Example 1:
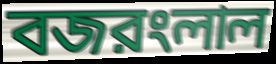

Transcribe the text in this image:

বজরংলাল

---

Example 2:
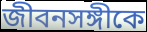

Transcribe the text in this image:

জীবনসঙ্গীকে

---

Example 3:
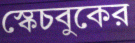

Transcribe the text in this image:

স্কেচবুকের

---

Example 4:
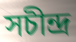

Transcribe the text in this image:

সচীন্দ্র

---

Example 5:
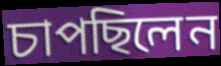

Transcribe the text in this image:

চাপছিলেন